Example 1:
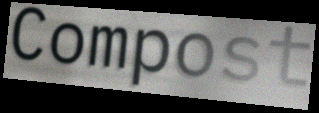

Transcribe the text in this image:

Compost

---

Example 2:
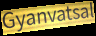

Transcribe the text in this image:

Gyanvatsal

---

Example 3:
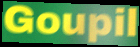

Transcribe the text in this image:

Goupil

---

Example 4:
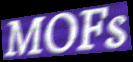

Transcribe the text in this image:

MOFs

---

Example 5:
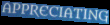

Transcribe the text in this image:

APPRECIATING